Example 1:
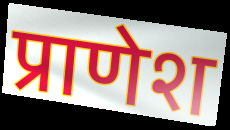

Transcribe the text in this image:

प्राणेश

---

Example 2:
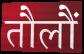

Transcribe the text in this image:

तौलौं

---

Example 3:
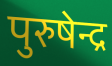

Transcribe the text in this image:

पुरुषेन्द्र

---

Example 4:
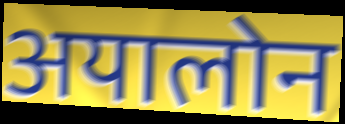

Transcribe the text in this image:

अयालोन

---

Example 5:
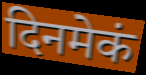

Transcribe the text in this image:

दिनमेकं